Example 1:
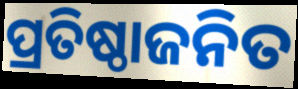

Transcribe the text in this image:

ପ୍ରତିଷ୍ଠାଜନିତ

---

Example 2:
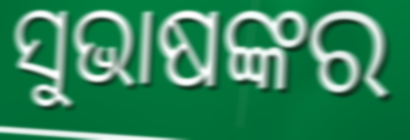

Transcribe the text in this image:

ସୁଭାଷଙ୍କର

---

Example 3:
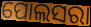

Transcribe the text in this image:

ପୋଲସରା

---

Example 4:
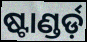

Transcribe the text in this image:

ଷ୍ଟାଣ୍ଡର୍ଡ଼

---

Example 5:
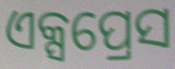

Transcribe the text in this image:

ଏକ୍ସପ୍ରେସ